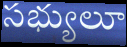
సభ్యులూ